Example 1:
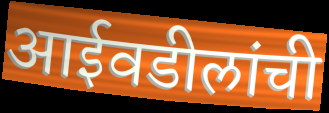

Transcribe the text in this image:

आईवडीलांची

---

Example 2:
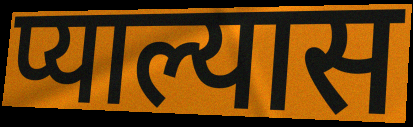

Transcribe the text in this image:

प्याल्यास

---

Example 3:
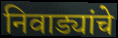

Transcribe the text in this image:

निवाड्यांचे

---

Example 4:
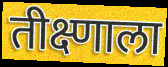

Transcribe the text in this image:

तीक्ष्णाला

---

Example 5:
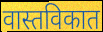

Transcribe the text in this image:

वास्तविकात